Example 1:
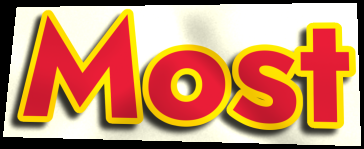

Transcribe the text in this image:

Most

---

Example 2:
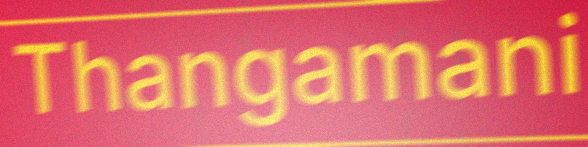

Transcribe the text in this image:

Thangamani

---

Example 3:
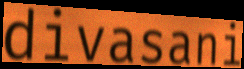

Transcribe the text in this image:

divasani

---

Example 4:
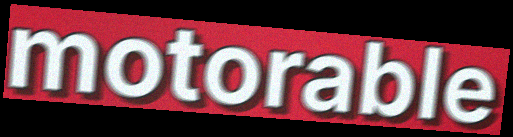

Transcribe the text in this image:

motorable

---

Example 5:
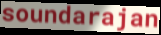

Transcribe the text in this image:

soundarajan